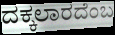
ದಕ್ಕಲಾರದೆಂಬ